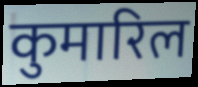
कुमारिल